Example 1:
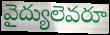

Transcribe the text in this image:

వైద్యులెవరూ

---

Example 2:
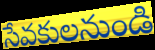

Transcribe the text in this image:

సేవకులనుండి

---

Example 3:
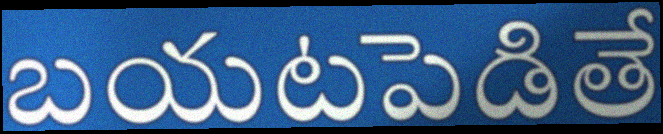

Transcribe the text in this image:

బయటపెడితే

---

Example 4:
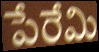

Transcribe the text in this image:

పేరేమి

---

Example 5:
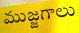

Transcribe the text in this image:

ముజ్జగాలు